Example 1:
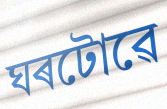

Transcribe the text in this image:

ঘৰটোৱে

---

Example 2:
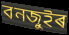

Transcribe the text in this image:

বনজুইৰ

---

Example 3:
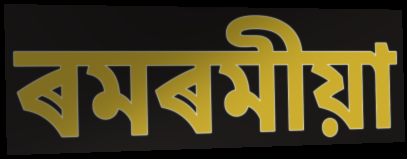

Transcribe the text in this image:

ৰমৰমীয়া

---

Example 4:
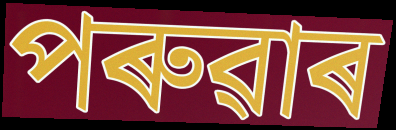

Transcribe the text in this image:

পৰুৱাৰ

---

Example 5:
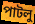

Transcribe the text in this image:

পাটলু